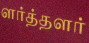
ளர்த்தளர்